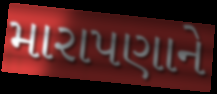
મારાપણાને